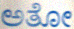
ಅತೋ